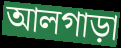
আলগাড়া